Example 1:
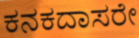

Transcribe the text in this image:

ಕನಕದಾಸರೇ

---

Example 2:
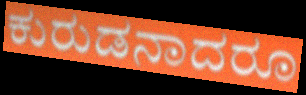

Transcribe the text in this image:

ಕುರುಡನಾದರೂ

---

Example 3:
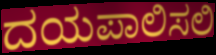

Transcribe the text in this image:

ದಯಪಾಲಿಸಲಿ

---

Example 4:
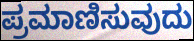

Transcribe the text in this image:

ಪ್ರಮಾಣಿಸುವುದು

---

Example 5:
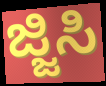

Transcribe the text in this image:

ಜ್ಜಿಸಿ